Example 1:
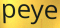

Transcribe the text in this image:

peye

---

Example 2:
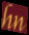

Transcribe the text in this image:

hn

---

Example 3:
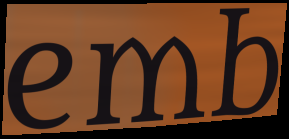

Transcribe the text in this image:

emb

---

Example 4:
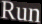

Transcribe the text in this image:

Run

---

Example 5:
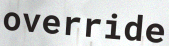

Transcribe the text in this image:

override